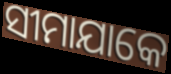
ସୀମାଯାକେ